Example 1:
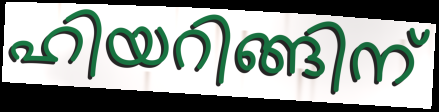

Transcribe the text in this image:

ഹിയറിങ്ങിന്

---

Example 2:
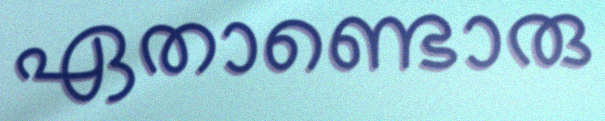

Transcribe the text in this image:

ഏതാണ്ടൊരു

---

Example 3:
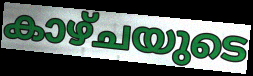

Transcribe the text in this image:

കാഴ്ചയുടെ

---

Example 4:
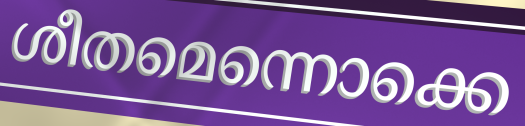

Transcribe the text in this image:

ശീതമെന്നൊക്കെ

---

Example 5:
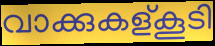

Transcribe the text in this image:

വാക്കുകള്കൂടി